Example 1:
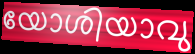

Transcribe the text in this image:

യോശിയാവു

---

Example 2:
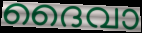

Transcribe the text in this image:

ദൈവാ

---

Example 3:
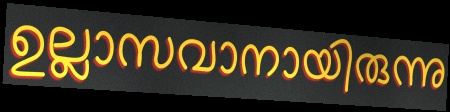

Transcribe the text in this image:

ഉല്ലാസവാനായിരുന്നു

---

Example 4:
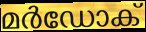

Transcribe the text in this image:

മർഡോക്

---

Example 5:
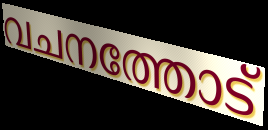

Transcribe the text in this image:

വചനത്തോട്